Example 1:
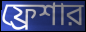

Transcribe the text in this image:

ফ্রেশার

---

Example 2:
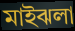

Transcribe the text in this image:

মাইঝলা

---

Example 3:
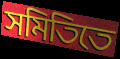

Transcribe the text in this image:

সমিতিতে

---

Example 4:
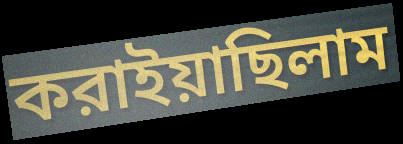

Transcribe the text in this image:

করাইয়াছিলাম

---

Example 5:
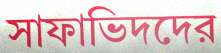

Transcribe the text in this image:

সাফাভিদদের